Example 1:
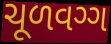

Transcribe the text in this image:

ચૂળવગ્ગ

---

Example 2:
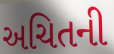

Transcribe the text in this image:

અચિતની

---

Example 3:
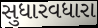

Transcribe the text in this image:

સુધારવધારા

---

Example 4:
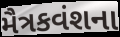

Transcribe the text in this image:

મૈત્રકવંશના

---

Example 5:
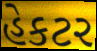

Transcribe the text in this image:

હેકટર